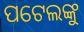
ପଟେଲଙ୍କୁ